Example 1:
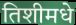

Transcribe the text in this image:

तिशीमधे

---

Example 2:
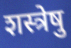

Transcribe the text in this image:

शस्त्रेषु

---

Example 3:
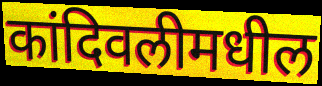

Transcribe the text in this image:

कांदिवलीमधील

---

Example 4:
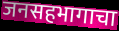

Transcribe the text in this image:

जनसहभागाचा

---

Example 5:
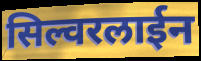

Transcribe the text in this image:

सिल्वरलाईन